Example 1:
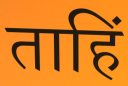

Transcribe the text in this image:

ताहिं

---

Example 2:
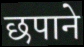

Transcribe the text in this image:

छपाने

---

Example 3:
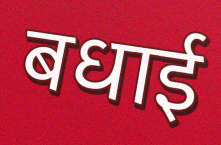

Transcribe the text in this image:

बधाई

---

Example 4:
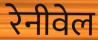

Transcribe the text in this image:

रेनीवेल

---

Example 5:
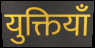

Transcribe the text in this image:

युक्तियाँ